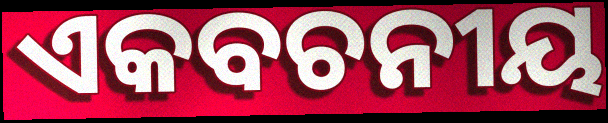
ଏକବଚନୀୟ